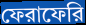
ফেরাফেরি